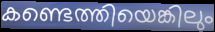
കണ്ടെത്തിയെങ്കിലും